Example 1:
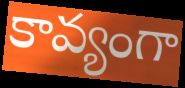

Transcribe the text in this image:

కావ్యంగా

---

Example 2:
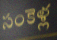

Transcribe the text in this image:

సంకెళ్ల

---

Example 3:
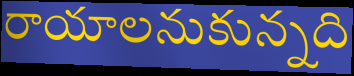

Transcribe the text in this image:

రాయాలనుకున్నది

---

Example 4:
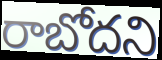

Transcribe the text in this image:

రాబోదని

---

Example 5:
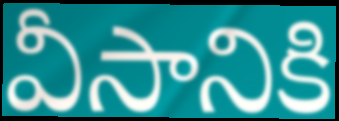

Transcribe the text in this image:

వీసానికి